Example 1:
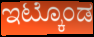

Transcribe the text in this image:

ಇಟ್ಕೊಂಡ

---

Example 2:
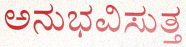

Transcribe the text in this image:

ಅನುಭವಿಸುತ್ತ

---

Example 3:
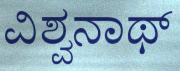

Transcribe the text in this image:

ವಿಶ್ವನಾಥ್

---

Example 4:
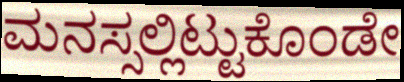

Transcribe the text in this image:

ಮನಸ್ಸಲ್ಲಿಟ್ಟುಕೊಂಡೇ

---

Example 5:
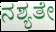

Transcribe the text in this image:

ನಶ್ಯತೇ